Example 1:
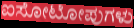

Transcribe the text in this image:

ಐಸೋಟೋಪುಗಳು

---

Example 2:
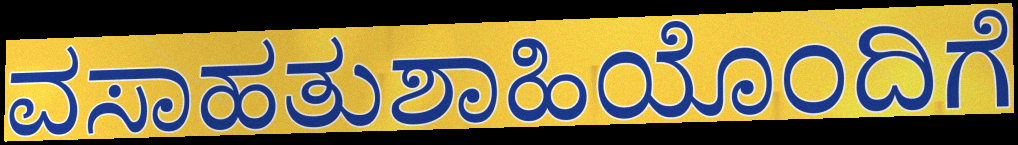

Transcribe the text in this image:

ವಸಾಹತುಶಾಹಿಯೊಂದಿಗೆ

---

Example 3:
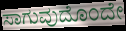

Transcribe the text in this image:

ಸಾಗುವುದೊಂದೇ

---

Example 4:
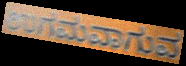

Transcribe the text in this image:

ಉಗಮವಾಗುವ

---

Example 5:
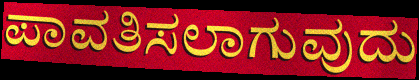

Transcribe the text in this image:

ಪಾವತಿಸಲಾಗುವುದು